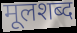
मूलशब्द